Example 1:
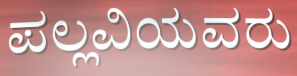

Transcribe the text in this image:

ಪಲ್ಲವಿಯವರು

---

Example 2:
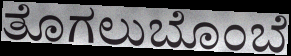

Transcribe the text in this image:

ತೊಗಲುಬೊಂಬೆ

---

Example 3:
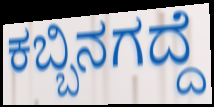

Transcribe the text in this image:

ಕಬ್ಬಿನಗದ್ದೆ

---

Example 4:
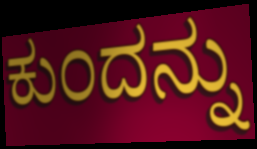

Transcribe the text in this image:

ಕುಂದನ್ನು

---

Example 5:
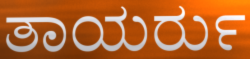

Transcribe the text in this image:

ತಾಯರ್ರು